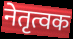
नेतृत्वक